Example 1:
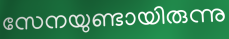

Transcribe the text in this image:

സേനയുണ്ടായിരുന്നു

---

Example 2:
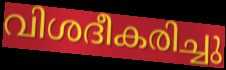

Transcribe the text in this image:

വിശദീകരിച്ചു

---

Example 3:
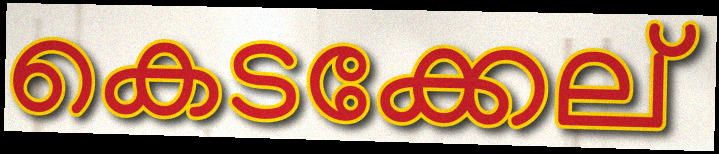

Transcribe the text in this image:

കെടക്കേല്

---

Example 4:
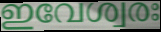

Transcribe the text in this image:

ഇവേശ്വരഃ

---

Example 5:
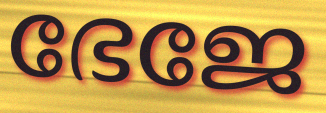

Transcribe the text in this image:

ഭേജേ